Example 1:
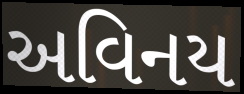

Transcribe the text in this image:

અવિનય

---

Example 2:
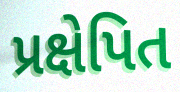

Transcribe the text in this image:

પ્રક્ષેપિત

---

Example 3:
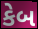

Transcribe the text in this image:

કેબ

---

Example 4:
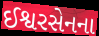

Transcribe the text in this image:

ઈશ્વરસેનના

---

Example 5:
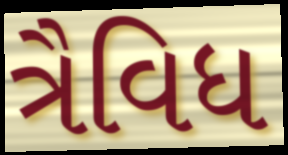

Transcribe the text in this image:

ત્રૈવિધ